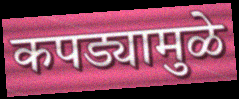
कपड्यामुळे